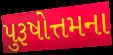
પુરૂષોત્તમના